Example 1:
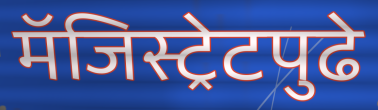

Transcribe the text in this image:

मॅजिस्ट्रेटपुढे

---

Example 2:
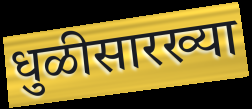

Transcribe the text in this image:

धुळीसारख्या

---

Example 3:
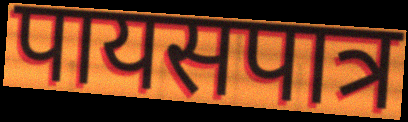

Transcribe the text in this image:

पायसपात्र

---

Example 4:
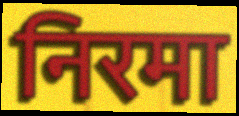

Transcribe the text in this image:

निरमा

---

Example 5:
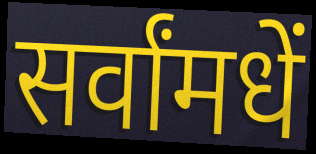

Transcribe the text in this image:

सर्वांमधें